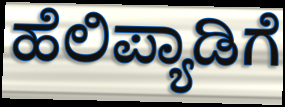
ಹೆಲಿಪ್ಯಾಡಿಗೆ